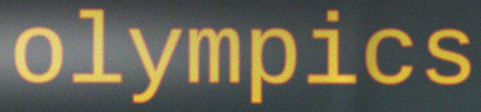
olympics